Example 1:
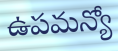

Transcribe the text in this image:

ఉపమన్యో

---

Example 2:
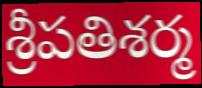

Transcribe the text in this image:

శ్రీపతిశర్మ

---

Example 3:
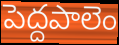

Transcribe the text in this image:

పెద్దపాలెం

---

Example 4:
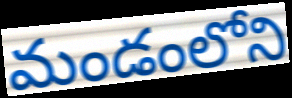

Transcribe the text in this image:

మండంలోని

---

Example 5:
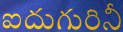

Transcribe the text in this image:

ఐదుగురినీ